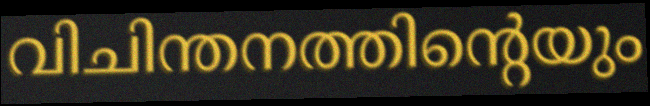
വിചിന്തനത്തിന്റെയും